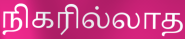
நிகரில்லாத